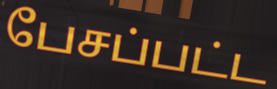
பேசப்பட்ட